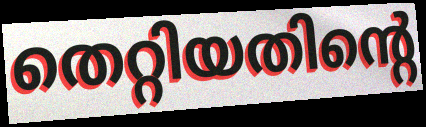
തെറ്റിയതിന്റെ